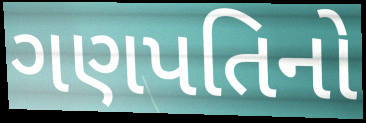
ગણપતિનો